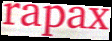
rapax